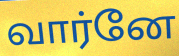
வார்னே